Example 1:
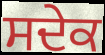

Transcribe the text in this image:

ਸਦੇਕ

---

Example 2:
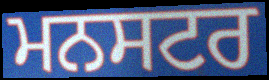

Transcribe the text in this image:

ਮਨਸਟਰ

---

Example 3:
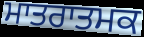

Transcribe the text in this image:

ਮਾਤਰਾਤਮਕ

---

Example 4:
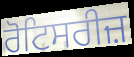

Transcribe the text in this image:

ਰੋਟਿਸਰੀਜ਼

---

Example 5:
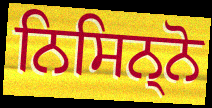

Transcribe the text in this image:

ਨਿਸਿਨ੍ਨੋ